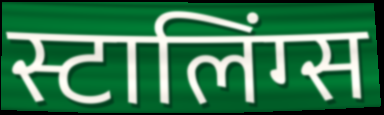
स्टालिंग्स